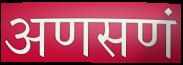
अणसणं